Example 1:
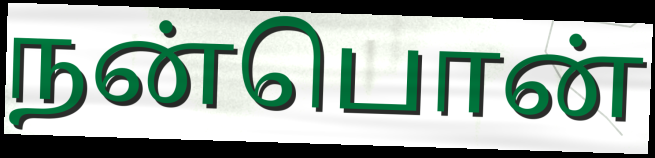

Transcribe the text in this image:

நன்பொன்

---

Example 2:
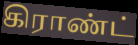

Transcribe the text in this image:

கிராண்ட்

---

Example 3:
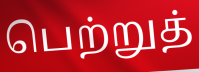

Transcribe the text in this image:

பெற்றுத்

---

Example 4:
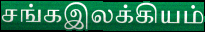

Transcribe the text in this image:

சங்கஇலக்கியம்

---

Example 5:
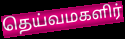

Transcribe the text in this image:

தெய்வமகளிர்